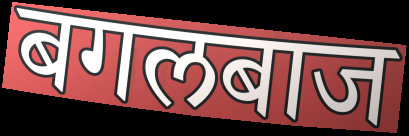
बगलबाज